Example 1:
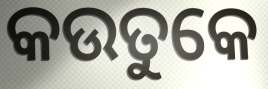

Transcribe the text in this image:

କଉତୁକେ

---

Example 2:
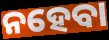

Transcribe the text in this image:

ନହେବା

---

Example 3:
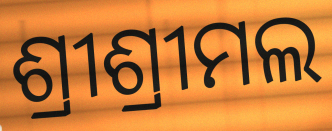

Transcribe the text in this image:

ଶ୍ରୀଶ୍ରୀମଲ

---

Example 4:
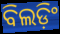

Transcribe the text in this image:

ବିଲଡ଼ିଂ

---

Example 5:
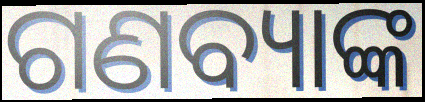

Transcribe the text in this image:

ଗଣବ୍ୟାଙ୍କ